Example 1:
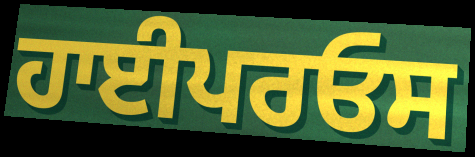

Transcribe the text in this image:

ਹਾਈਪਰਓਸ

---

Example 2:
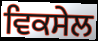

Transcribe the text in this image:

ਵਿਕਸੇਲ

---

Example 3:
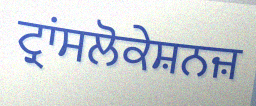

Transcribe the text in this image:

ਟ੍ਰਾਂਸਲੋਕੇਸ਼ਨਜ਼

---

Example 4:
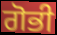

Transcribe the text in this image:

ਗੋਭੀ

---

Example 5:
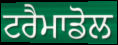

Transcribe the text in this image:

ਟਰੈਮਾਡੋਲ